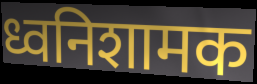
ध्वनिशामक